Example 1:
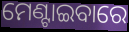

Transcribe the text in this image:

ମେଣ୍ଟାଇବାରେ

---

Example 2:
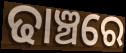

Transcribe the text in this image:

ଢାଞ୍ଚରେ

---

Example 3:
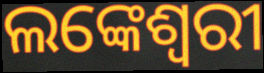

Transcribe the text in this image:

ଲଙ୍କେଶ୍ୱରୀ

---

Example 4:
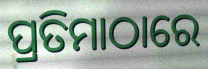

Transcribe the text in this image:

ପ୍ରତିମାଠାରେ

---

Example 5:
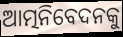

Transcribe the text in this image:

ଆତ୍ମନିବେଦନକୁ